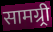
सामग्र्री